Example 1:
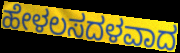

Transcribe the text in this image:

ಹೇಳಲಸದಳವಾದ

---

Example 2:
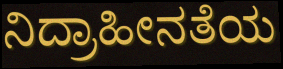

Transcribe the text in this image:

ನಿದ್ರಾಹೀನತೆಯ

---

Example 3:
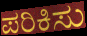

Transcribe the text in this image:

ಪರಿಕಿಸು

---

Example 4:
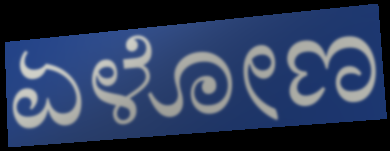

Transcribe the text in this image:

ಏಳೋಣ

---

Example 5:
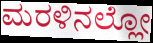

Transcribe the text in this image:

ಮರಳಿನಲ್ಲೋ